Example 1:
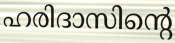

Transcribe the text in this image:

ഹരിദാസിന്റെ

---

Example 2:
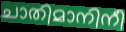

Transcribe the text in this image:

ചാതിമാനിനീ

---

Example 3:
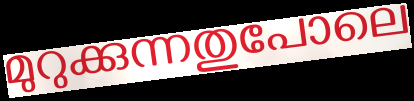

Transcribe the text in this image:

മുറുക്കുന്നതുപോലെ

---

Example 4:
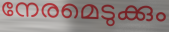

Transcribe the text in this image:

നേരമെടുക്കും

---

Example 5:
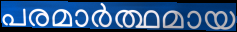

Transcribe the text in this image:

പരമാർത്ഥമായ